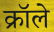
क्रॉले